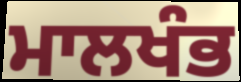
ਮਾਲਖੰਭ